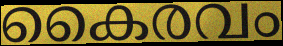
കൈരവം